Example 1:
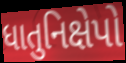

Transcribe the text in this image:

ધાતુનિક્ષેપો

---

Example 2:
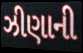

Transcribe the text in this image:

ઝીણાની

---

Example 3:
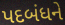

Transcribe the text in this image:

પદબંધને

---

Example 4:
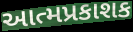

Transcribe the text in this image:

આત્મપ્રકાશક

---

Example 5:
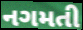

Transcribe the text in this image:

નગમતી